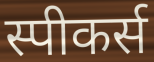
स्पीकर्स